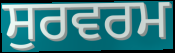
ਸੁਰਵਰਮ